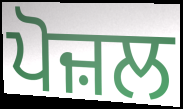
ਪੋਜ਼ਲ